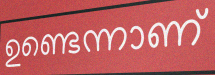
ഉണ്ടെന്നാണ്